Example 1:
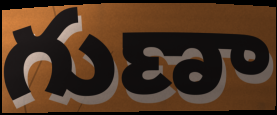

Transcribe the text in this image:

గుణా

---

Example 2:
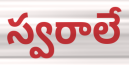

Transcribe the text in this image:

స్వరాలే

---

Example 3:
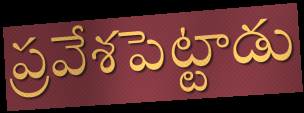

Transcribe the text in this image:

ప్రవేశపెట్టాడు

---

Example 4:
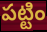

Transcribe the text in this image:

పట్టిం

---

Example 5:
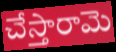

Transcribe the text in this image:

చేస్తారామె